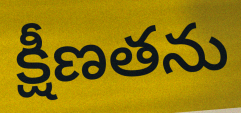
క్షీణతను